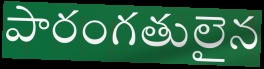
పారంగతులైన